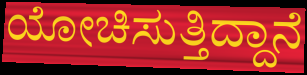
ಯೋಚಿಸುತ್ತಿದ್ದಾನೆ